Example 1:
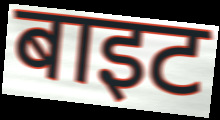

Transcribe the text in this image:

बाइट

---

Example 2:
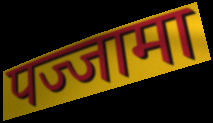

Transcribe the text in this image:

पज्जामा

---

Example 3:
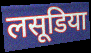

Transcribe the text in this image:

लसूडिया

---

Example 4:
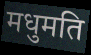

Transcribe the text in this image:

मधुमति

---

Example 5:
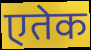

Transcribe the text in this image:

एतेक